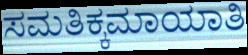
ಸಮತಿಕ್ಕಮಾಯಾತಿ